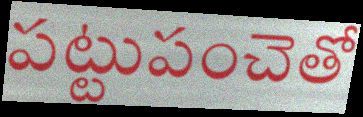
పట్టుపంచెతో